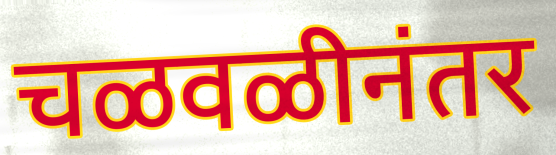
चळवळीनंतर